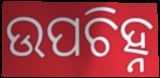
ଉପଚିହ୍ନ